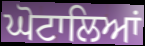
ਘੋਟਾਲਿਆਂ